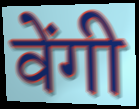
वेंगी